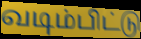
வடிம்பிட்டு